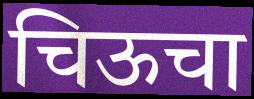
चिऊचा